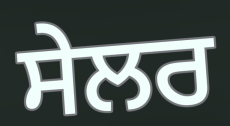
ਸੇਲਰ